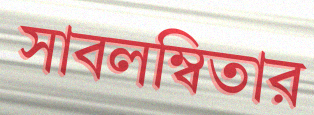
সাবলম্বিতার